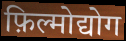
फ़िल्मोद्योग